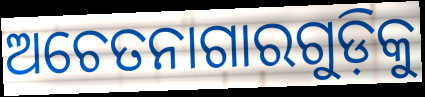
ଅଚେତନାଗାରଗୁଡ଼ିକୁ